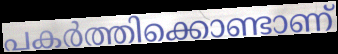
പകർത്തിക്കൊണ്ടാണ്